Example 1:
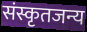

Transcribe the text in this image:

संस्कृतजन्य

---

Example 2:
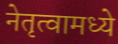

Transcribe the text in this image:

नेतृत्वामध्ये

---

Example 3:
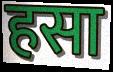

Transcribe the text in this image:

हसा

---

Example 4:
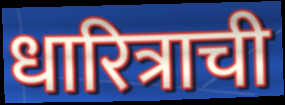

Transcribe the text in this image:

धारित्राची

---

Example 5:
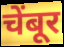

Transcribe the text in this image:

चेंबूर